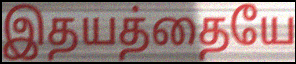
இதயத்தையே